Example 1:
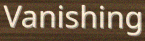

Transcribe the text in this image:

Vanishing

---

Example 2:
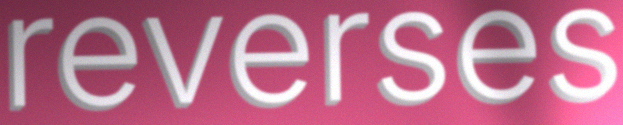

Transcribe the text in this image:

reverses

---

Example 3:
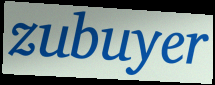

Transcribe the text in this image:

zubuyer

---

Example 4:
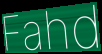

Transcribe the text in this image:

Fahd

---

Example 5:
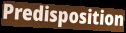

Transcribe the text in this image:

Predisposition